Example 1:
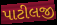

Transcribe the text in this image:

પાટીલજી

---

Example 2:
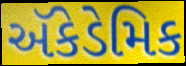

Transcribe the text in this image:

ઍકેડેમિક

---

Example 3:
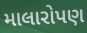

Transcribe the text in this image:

માલારોપણ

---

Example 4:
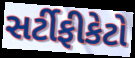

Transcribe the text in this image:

સર્ટીફીકેટો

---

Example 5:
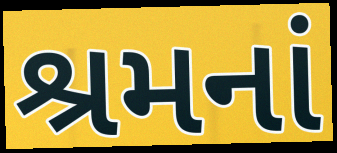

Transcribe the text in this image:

શ્રમનાં